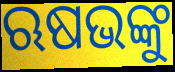
ଋଷଭଙ୍କୁ